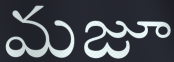
మజూ